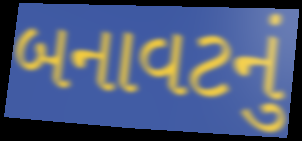
બનાવટનું